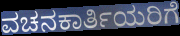
ವಚನಕಾರ್ತಿಯರಿಗೆ